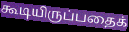
கூடியிருப்பதைக்